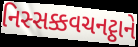
નિસ્સક્કવચનટ્ઠાને